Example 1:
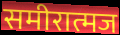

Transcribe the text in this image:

समीरात्मज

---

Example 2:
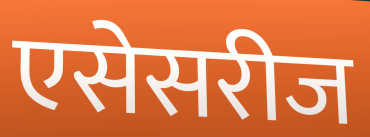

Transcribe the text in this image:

एसेसरीज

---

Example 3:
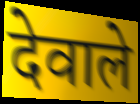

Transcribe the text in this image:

देवाले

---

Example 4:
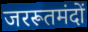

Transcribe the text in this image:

जररूतमंदों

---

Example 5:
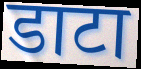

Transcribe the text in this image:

डाटा